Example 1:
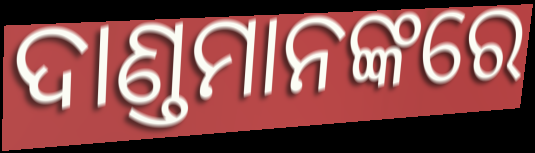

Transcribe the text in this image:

ଦାଣ୍ଡମାନଙ୍କରେ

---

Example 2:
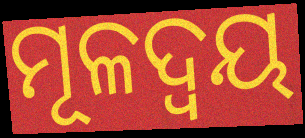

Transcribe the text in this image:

ମୂଳଦ୍ୱୟ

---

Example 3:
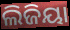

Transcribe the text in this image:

ଲିଜିୟା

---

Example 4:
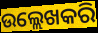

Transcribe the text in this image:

ଉଲ୍ଲେଖକରି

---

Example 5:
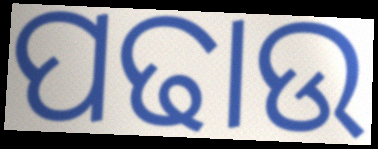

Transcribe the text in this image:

ପଢାଉ